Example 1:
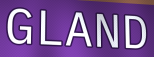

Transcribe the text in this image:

GLAND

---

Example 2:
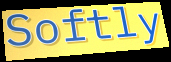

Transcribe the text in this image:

Softly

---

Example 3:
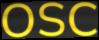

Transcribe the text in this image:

OSC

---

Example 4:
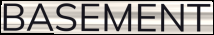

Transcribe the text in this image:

BASEMENT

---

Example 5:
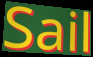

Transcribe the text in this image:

Sail